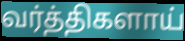
வர்த்திகளாய்